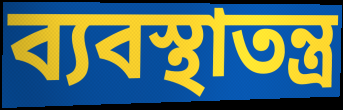
ব্যবস্থাতন্ত্র